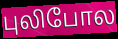
புலிபோல